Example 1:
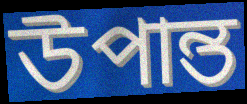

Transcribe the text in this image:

উপান্ত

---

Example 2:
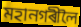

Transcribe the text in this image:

মহানগৰীলৈ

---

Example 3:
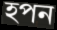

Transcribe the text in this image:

হপন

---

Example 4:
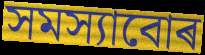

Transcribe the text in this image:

সমস্যাবোৰ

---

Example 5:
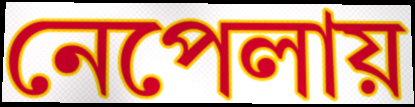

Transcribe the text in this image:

নেপেলায়